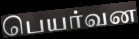
பெயர்வன